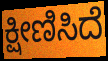
ಕ್ಷೀಣಿಸಿದೆ